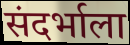
संदर्भाला